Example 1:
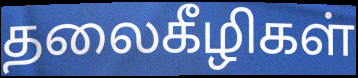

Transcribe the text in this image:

தலைகீழிகள்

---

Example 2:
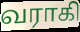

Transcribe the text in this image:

வராகி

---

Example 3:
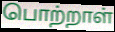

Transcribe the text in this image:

பொற்றாள்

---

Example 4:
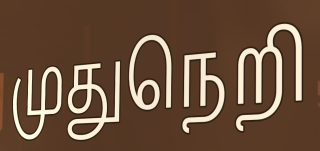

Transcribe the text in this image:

முதுநெறி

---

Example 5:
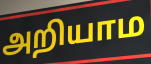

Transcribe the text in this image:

அறியாம